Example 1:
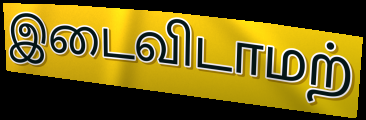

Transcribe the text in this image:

இடைவிடாமற்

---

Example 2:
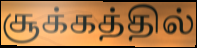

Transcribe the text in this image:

சூக்கத்தில்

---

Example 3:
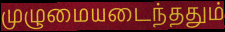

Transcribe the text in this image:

முழுமையடைந்ததும்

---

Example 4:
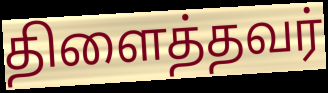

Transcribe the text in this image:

திளைத்தவர்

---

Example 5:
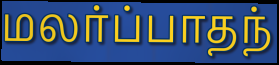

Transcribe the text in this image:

மலர்ப்பாதந்